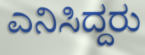
ಎನಿಸಿದ್ದರು